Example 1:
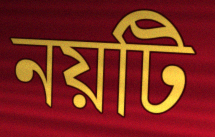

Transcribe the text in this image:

নয়টি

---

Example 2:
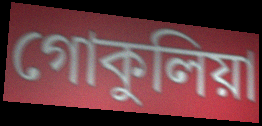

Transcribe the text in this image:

গোকুলিয়া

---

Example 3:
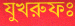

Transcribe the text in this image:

যুখরুফঃ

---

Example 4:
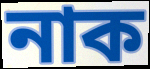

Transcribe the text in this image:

নাক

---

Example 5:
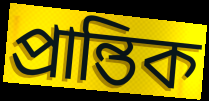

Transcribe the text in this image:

প্রান্তিক